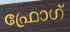
ഫ്രോഗ്